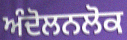
ਅੰਦੋਲਨਲੋਕ